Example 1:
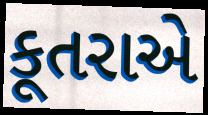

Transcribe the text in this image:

કૂતરાએ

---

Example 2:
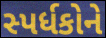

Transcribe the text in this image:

સ્પર્ધકોને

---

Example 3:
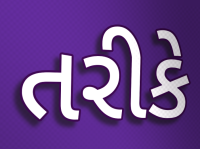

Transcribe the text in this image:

તરીકે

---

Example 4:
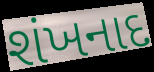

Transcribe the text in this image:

શંખનાદ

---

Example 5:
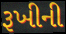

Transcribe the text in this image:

રૂખીની